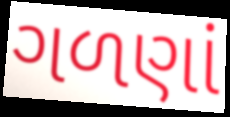
ગળણાં